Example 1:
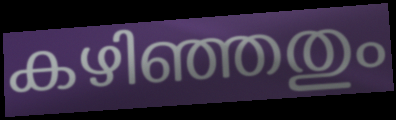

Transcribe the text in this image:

കഴിഞ്ഞതും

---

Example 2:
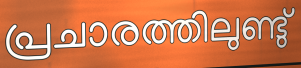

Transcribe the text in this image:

പ്രചാരത്തിലുണ്ടു്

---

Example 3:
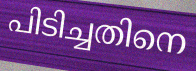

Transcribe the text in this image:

പിടിച്ചതിനെ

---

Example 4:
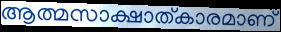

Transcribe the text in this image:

ആത്മസാക്ഷാത്കാരമാണ്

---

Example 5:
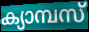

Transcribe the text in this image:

ക്യാമ്പസ്